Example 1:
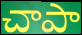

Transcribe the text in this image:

చాపా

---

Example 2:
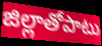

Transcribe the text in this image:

జిల్లాతోపాటు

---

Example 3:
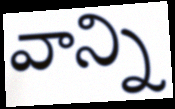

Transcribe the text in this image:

వాన్ని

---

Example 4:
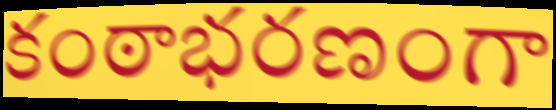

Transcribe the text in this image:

కంఠాభరణంగా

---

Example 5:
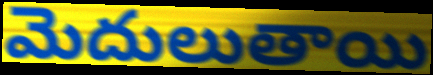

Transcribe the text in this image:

మెదులుతాయి